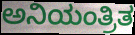
ಅನಿಯಂತ್ರಿತ